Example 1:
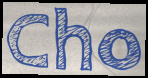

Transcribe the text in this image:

Cho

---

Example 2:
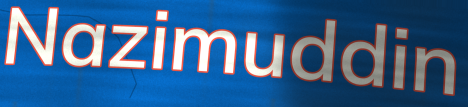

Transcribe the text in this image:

Nazimuddin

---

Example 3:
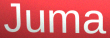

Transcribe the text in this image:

Juma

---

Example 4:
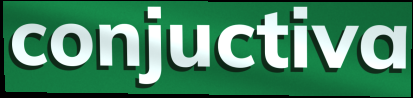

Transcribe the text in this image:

conjuctiva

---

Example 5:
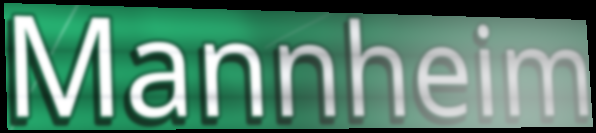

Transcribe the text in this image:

Mannheim